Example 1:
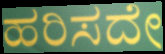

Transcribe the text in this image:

ಹರಿಸದೇ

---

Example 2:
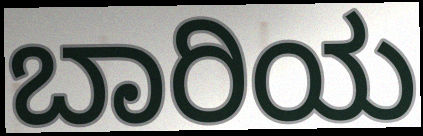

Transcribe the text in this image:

ಬಾರಿಯ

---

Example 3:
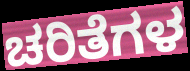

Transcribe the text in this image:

ಚರಿತೆಗಳ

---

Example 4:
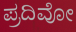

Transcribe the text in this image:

ಪ್ರದಿವೋ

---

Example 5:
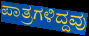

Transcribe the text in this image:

ಪಾತ್ರಗಳಿದ್ದವು